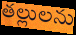
తల్లులను